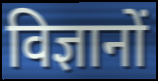
विज्ञानों